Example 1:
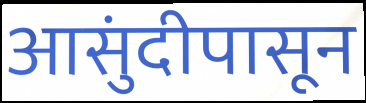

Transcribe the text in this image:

आसुंदीपासून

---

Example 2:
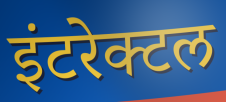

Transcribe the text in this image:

इंटरेक्टल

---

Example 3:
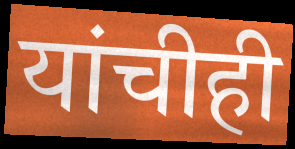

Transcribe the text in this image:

यांचीही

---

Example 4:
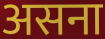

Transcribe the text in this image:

असना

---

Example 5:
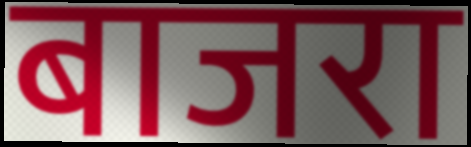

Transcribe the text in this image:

बाजरा